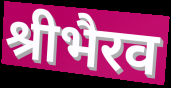
श्रीभैरव